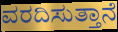
ವರದಿಸುತ್ತಾನೆ